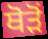
ਥੋੜੋਂ